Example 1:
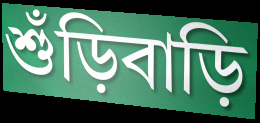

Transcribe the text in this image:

শুঁড়িবাড়ি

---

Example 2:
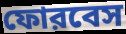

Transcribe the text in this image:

ফোরবেস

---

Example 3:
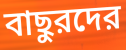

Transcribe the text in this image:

বাছুরদের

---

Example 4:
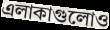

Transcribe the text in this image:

এলাকাগুলোও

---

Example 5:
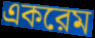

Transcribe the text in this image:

একরেম